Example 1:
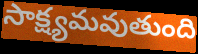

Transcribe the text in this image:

సాక్ష్యమవుతుంది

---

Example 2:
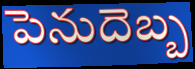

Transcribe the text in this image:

పెనుదెబ్బ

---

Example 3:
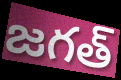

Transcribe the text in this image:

జగత్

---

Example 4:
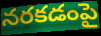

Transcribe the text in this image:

నరకడంపై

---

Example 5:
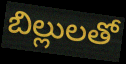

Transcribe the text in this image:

బిల్లులతో